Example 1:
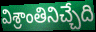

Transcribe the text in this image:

విశ్రాంతినిచ్చేది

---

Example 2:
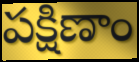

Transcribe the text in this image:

పక్షిణాం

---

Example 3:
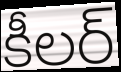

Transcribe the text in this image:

కీలర్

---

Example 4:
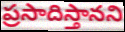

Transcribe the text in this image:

ప్రసాదిస్తానని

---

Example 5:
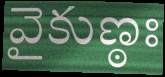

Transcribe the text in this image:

వైకుణ్ఠః